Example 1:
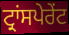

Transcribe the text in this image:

ਟ੍ਰਾਂਸਪੇਰੇਂਟ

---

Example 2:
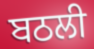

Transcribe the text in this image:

ਬਠਲੀ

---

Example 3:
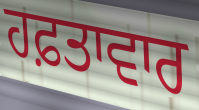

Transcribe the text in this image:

ਹਫ਼ਤਾਵਾਰ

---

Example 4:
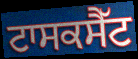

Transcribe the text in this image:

ਟਾਸਕਸੈੱਟ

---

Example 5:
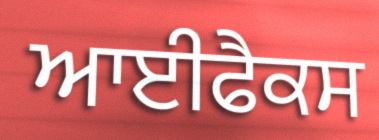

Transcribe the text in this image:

ਆਈਫੈਕਸ